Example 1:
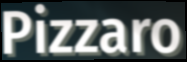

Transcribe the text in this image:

Pizzaro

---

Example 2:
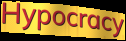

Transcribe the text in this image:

Hypocracy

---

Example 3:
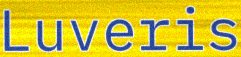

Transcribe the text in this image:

Luveris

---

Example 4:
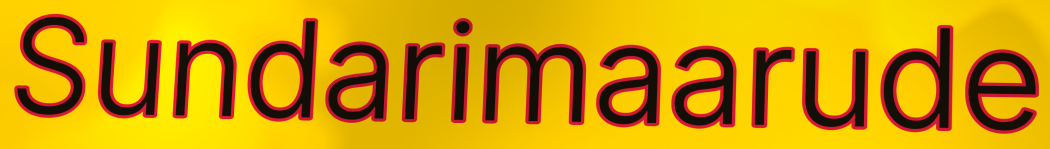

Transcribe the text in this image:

Sundarimaarude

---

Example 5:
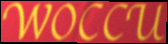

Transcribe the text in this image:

WOCCU